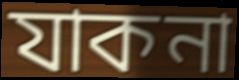
যাকনা